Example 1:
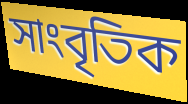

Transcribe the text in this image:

সাংবৃতিক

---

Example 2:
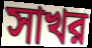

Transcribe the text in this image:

সাখর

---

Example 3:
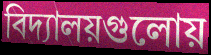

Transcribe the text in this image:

বিদ্যালয়গুলোয়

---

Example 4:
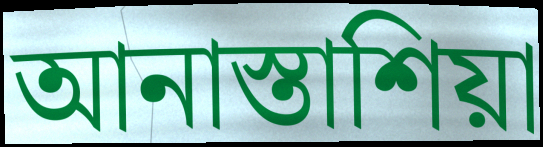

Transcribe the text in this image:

আনাস্তাশিয়া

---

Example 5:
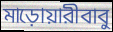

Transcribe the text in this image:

মাড়োয়ারীবাবু